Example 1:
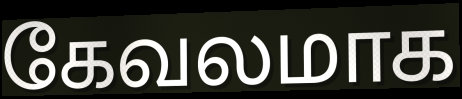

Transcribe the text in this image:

கேவலமாக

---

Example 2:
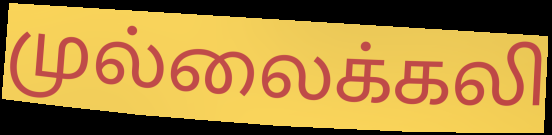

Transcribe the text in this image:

முல்லைக்கலி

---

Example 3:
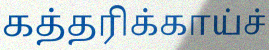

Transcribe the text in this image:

கத்தரிக்காய்ச்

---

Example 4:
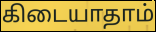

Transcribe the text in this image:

கிடையாதாம்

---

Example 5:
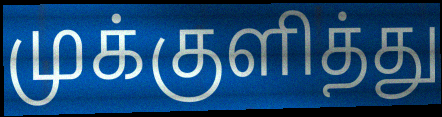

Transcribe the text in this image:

முக்குளித்து